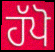
ਹੱਪੋ